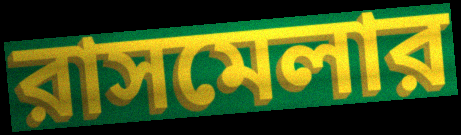
রাসমেলার